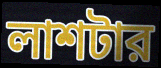
লাশটার